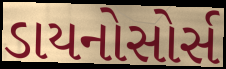
ડાયનોસોર્સ